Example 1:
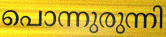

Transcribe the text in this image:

പൊന്നുരുന്നി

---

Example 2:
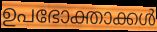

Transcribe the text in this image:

ഉപഭോക്താക്കൾ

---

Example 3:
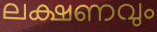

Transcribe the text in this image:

ലക്ഷണവും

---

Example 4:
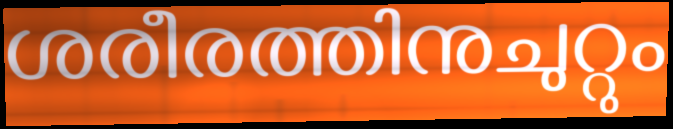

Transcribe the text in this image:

ശരീരത്തിനുചുറ്റും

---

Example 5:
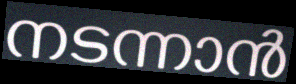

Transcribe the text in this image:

നടന്നാൻ